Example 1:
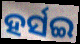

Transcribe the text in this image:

ହର୍ସଇ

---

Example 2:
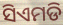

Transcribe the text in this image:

ସିଏମଡି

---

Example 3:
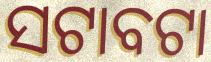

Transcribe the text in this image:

ସଟାବଟା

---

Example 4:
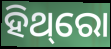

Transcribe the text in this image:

ହିଥ୍‌ରୋ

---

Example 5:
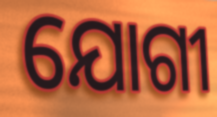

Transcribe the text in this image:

ଯୋଗୀ